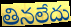
తినలేదు